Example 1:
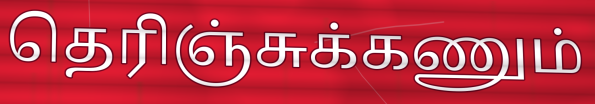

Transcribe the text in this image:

தெரிஞ்சுக்கணும்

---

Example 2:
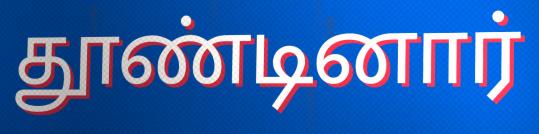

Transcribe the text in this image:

தூண்டினார்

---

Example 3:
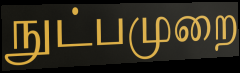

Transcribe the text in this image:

நுட்பமுறை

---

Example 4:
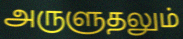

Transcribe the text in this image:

அருளுதலும்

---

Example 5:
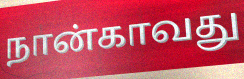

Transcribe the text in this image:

நான்காவது